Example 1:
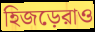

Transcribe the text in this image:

হিজড়েরাও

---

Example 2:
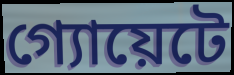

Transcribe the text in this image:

গ্যোয়েটে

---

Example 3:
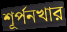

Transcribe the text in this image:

শূর্পনখার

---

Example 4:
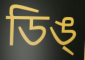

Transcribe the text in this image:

ডিঙ্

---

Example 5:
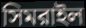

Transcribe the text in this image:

সিমরাইল